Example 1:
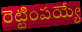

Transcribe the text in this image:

రెట్టింపయ్యే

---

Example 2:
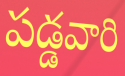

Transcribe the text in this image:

పడ్డవారి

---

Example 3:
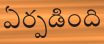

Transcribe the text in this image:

ఏర్పడింది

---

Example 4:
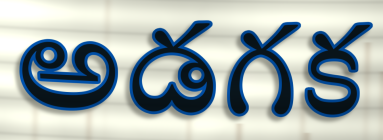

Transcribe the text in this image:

అడగక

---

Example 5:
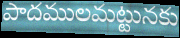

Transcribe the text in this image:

పాదములమట్టునకు